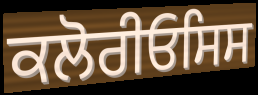
ਕਲੋਰੀਓਸਿਸ